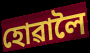
হোৱালৈ